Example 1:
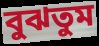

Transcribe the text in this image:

বুঝতুম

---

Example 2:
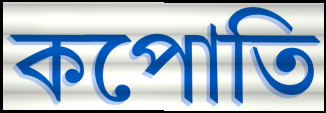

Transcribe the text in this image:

কপোতি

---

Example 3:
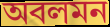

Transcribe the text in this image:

অবলমন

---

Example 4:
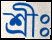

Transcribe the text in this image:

শ্রীঃ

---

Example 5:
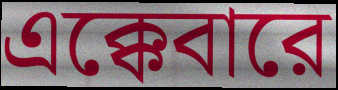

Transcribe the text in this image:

এক্কেবারে